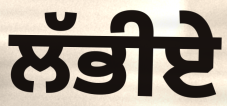
ਲੱਭੀਏ